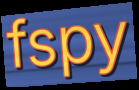
fspy